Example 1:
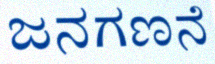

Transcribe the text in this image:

ಜನಗಣನೆ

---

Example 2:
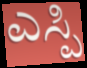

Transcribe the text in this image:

ಎಸ್ಪಿ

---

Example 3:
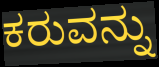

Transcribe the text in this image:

ಕರುವನ್ನು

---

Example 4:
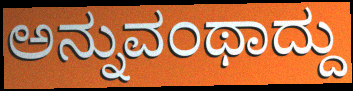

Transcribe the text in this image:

ಅನ್ನುವಂಥಾದ್ದು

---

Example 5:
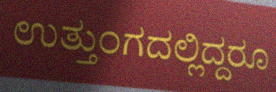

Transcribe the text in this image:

ಉತ್ತುಂಗದಲ್ಲಿದ್ದರೂ